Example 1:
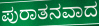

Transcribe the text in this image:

ಪುರಾತನವಾದ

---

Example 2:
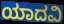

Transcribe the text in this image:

ಯಾದವಿ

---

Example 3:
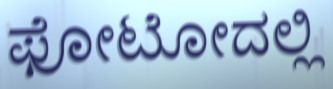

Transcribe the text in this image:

ಫೋಟೋದಲ್ಲಿ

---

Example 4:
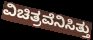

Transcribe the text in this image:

ವಿಚಿತ್ರವೆನಿಸಿತ್ತು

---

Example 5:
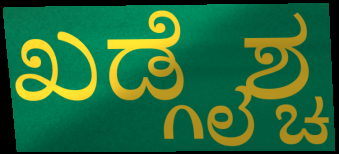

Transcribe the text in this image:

ಖಡ್ಗೈಶ್ಚ